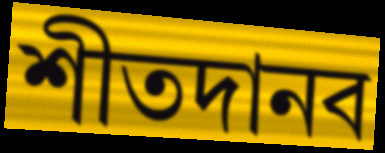
শীতদানব